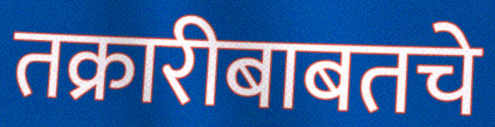
तक्रारीबाबतचे